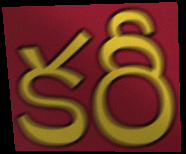
కరీ